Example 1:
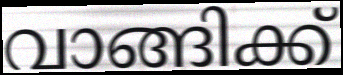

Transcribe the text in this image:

വാങ്ങിക്ക്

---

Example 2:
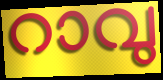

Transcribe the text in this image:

റാവു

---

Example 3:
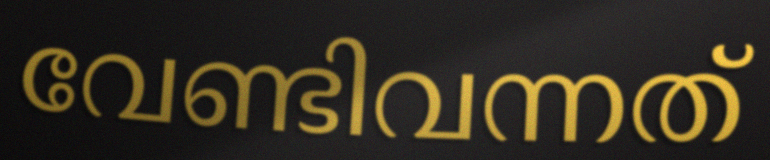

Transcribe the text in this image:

വേണ്ടിവന്നത്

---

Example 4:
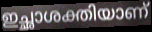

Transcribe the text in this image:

ഇച്ഛാശക്തിയാണ്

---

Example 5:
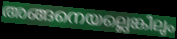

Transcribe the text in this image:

അങ്ങനെയല്ലെങ്കിലും